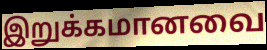
இறுக்கமானவை